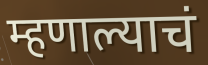
म्हणाल्याचं